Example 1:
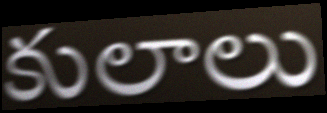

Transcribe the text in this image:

కులాలు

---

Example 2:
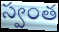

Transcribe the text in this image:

స్వంత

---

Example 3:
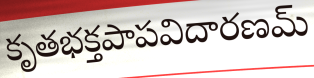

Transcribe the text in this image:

కృతభక్తపాపవిదారణమ్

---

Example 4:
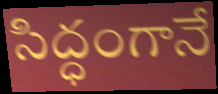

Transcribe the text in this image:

సిద్ధంగానే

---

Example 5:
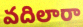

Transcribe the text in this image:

వదిలారా